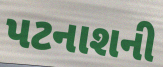
પટનાશની